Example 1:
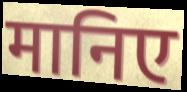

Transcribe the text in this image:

मानिए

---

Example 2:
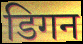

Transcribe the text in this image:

डिगन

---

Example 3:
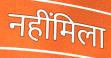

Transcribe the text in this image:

नहींमिला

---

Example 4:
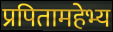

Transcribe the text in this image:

प्रपितामहेभ्य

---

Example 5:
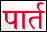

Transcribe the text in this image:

पार्त